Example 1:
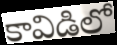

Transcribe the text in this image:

కావిడిలో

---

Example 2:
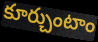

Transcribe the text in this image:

కూర్చుంటాం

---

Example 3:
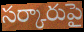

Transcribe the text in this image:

సర్కారుపై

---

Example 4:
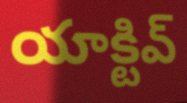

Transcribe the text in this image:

యాక్టివ్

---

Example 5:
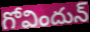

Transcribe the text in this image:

గోవిందున్